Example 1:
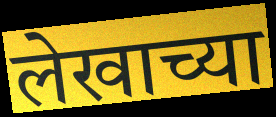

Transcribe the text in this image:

लेखाच्या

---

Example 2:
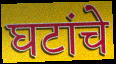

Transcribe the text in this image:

घटांचे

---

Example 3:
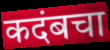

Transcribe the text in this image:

कदंबचा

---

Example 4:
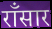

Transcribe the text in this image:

राँसार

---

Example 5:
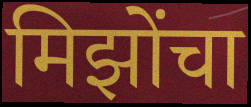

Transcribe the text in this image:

मिझोंचा